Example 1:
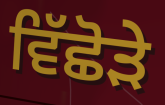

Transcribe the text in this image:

ਵਿੱਛੋੜੇ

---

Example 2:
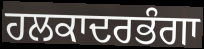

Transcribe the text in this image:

ਹਲਕਾਦਰਭੰਗਾ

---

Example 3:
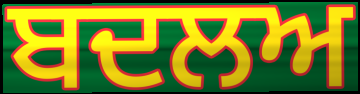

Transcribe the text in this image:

ਬਦਲਅ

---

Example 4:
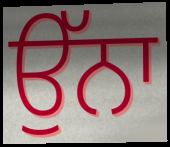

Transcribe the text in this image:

ਉੱਨਾ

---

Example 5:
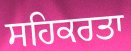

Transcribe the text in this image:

ਸਹਿਕਰਤਾ